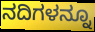
ನದಿಗಳನ್ನೂ